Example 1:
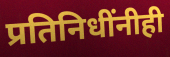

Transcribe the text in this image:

प्रतिनिधींनीही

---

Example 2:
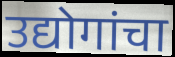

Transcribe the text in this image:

उद्योगांचा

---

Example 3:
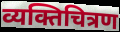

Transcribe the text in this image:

व्यक्तिचित्रण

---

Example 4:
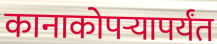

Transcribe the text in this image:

कानाकोपऱ्यापर्यंत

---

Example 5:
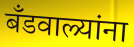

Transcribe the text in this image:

बँडवाल्यांना